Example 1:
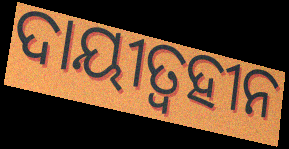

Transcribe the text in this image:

ଦାୟୀତ୍ୱହୀନ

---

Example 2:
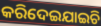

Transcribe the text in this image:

କରିଦେଇଯାଇଚି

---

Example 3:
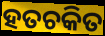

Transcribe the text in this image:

ହତଚକିତ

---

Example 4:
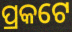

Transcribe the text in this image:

ପ୍ରକଟେ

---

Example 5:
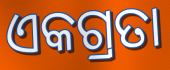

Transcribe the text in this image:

ଏକଗ୍ରତା